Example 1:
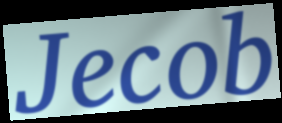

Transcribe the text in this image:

Jecob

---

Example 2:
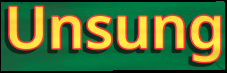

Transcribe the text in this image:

Unsung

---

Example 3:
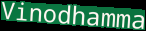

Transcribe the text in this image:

Vinodhamma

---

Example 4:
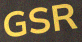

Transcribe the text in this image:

GSR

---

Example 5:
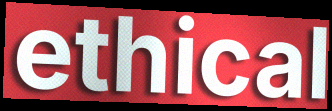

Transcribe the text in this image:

ethical